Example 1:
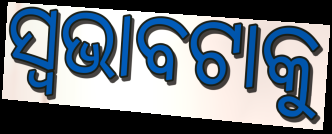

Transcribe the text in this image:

ସ୍ଵଭାବଟାକୁ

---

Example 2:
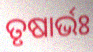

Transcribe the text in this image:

ତୃଷାର୍ଭଃ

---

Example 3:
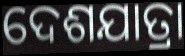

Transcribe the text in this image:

ଦେଶଯାତ୍ରା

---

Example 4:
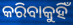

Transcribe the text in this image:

କରିବାକୁହିଁ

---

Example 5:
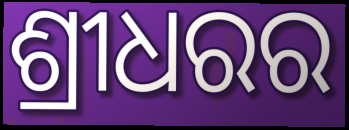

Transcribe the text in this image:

ଶ୍ରୀଧରର